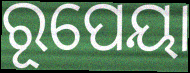
ରୂପେୟା